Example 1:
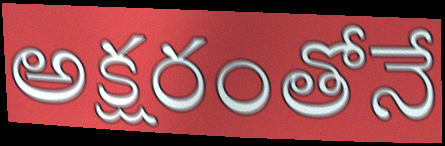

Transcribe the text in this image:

అక్షరంతోనే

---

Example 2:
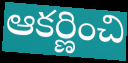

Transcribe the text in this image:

ఆకర్ణించి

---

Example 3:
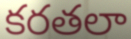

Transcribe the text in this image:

కరతలా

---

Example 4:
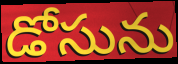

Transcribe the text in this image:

డోసును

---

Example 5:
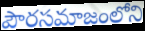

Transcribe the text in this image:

పౌరసమాజంలోని